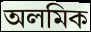
অলমিক